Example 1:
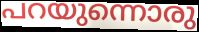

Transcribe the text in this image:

പറയുന്നൊരു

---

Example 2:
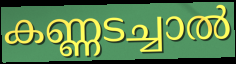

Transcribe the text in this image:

കണ്ണടച്ചാൽ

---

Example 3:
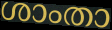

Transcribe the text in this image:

ശാംതാ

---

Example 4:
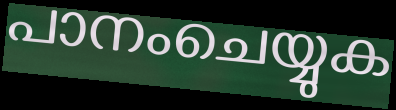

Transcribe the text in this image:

പാനംചെയ്യുക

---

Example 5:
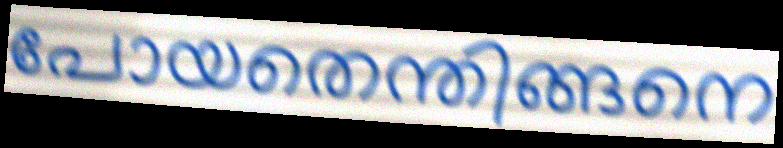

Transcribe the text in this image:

പോയതെന്തിങ്ങനെ